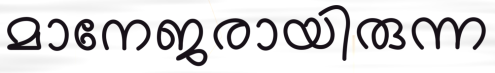
മാനേജരായിരുന്ന